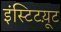
इंस्टिटय़ूट